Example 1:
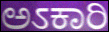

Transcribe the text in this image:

ಅಽಕಾರಿ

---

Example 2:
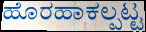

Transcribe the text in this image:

ಹೊರಹಾಕಲ್ಪಟ್ಟ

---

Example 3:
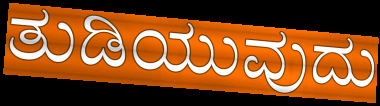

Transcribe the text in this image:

ತುಡಿಯುವುದು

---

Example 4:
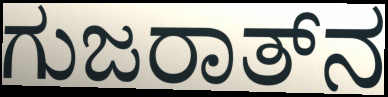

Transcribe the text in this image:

ಗುಜರಾತ್‌ನ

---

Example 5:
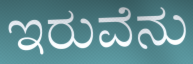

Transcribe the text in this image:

ಇರುವೆನು